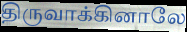
திருவாக்கினாலே